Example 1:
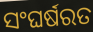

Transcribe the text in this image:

ସଂଘର୍ଷରତ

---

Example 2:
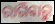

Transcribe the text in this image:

ରାଗିବାରୁ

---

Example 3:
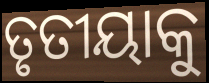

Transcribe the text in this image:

ତୃତୀୟାକୁ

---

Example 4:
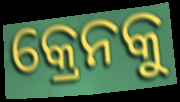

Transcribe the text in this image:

କ୍ରେନକୁ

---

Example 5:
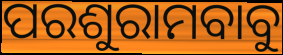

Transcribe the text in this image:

ପରଶୁରାମବାବୁ